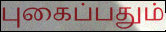
புகைப்பதும்